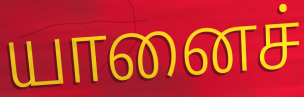
யானைச்